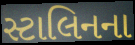
સ્ટાલિનના